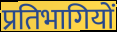
प्रतिभागियों